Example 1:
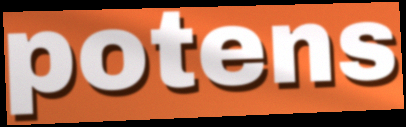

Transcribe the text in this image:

potens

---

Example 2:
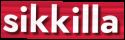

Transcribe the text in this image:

sikkilla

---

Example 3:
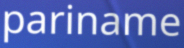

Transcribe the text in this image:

pariname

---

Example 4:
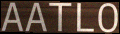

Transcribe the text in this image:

AATLO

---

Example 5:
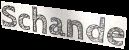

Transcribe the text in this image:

Schande